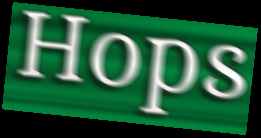
Hops